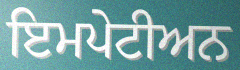
ਇਮਪੇਟੀਅਨ